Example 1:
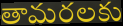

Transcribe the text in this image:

తామరలకు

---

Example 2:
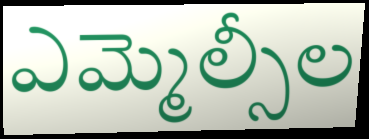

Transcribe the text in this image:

ఎమ్మెల్సీల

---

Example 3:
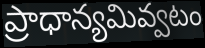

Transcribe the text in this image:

ప్రాధాన్యమివ్వటం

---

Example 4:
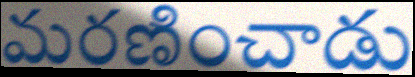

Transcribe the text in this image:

మరణించాడు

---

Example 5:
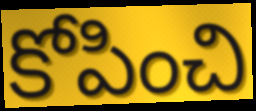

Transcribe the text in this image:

కోపించి